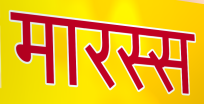
मारस्स